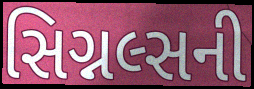
સિગ્નલ્સની